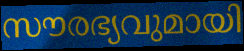
സൗരഭ്യവുമായി